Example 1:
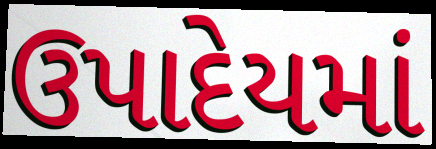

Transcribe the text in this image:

ઉપાદેયમાં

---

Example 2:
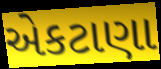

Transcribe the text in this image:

એકટાણા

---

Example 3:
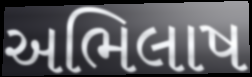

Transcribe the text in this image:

અભિલાષ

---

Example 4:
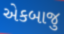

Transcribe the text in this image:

એકબાજુ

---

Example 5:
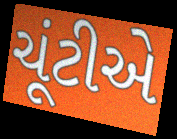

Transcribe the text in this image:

ચૂંટીએ